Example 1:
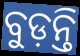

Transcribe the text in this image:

ବୁଡ଼ନ୍ତି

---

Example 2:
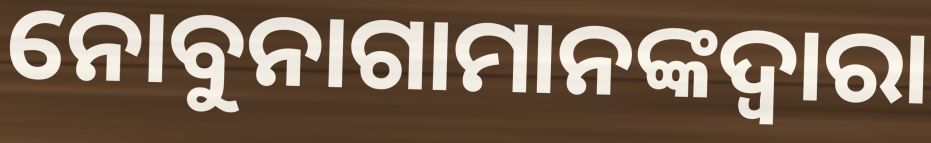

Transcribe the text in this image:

ନୋବୁନାଗାମାନଙ୍କଦ୍ୱାରା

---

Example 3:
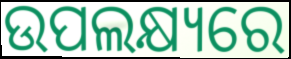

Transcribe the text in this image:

ଉପଲକ୍ଷ୍ୟରେ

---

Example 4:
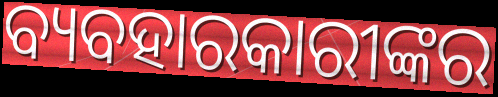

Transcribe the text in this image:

ବ୍ୟବହାରକାରୀଙ୍କର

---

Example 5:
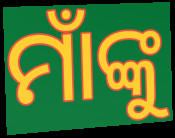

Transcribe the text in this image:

ମାଁଙ୍କୁ